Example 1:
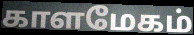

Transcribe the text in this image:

காளமேகம்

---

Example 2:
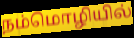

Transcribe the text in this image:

நம்மொழியில்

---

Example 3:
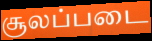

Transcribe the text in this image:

சூலப்படை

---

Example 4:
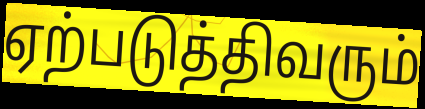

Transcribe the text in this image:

ஏற்படுத்திவரும்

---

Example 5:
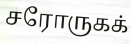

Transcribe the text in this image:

சரோருகக்